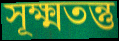
সূক্ষ্মতন্তু